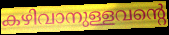
കഴിവാനുള്ളവന്റെ